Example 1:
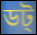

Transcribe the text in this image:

ডট্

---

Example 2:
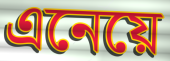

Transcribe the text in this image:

এনেয়ে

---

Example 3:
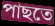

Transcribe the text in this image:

পাছতে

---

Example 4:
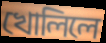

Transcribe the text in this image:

খোলিলে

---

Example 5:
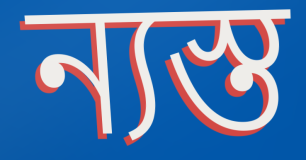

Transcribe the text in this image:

ন্যস্ত